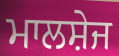
ਮਾਲਸ਼ੇਜ